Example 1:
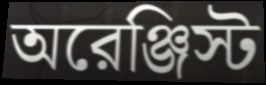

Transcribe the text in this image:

অরেঞ্জিস্ট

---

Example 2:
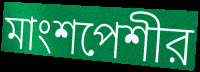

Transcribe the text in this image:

মাংশপেশীর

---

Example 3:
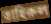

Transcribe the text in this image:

তাহিরুল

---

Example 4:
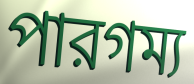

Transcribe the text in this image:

পারগম্য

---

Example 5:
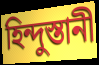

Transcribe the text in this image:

হিন্দুস্তানী